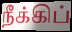
நீக்கிப்